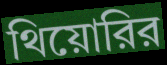
থিয়োরির